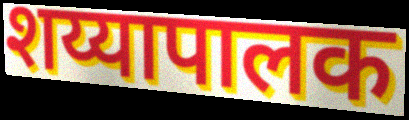
शय्यापालक